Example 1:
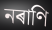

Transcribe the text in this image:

নৰাণি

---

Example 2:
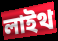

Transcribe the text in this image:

লাইথ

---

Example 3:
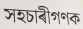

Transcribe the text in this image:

সহচাৰীগণক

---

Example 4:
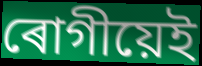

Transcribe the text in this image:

ৰোগীয়েই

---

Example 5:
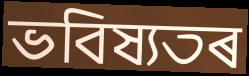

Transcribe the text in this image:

ভবিষ্যতৰ